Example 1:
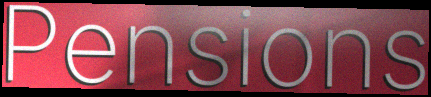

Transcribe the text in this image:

Pensions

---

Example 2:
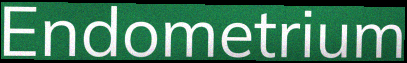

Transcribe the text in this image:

Endometrium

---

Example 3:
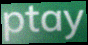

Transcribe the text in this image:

ptay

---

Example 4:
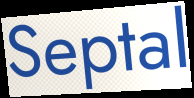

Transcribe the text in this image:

Septal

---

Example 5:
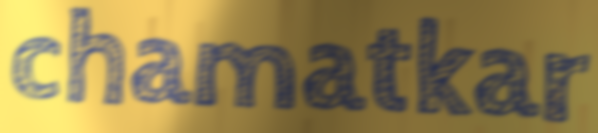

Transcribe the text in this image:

chamatkar